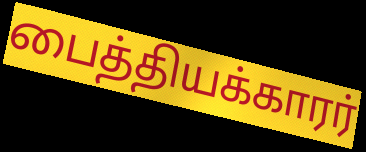
பைத்தியக்காரர்